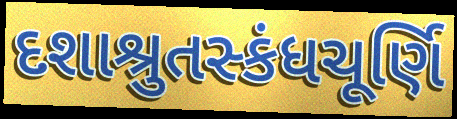
દશાશ્રુતસ્કંધચૂર્ણિ